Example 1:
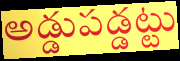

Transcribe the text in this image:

అడ్డుపడ్డట్టు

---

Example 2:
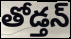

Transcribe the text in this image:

తోడ్తన్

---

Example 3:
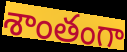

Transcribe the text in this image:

శాంతంగా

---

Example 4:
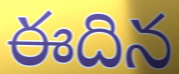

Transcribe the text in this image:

ఈదిన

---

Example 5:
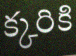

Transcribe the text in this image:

క్కరికి